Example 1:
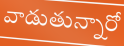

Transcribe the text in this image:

వాడుతున్నారో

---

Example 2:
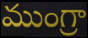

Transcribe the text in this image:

ముంగ్రా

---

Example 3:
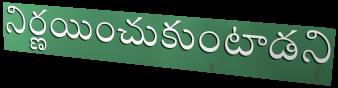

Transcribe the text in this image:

నిర్ణయించుకుంటాడని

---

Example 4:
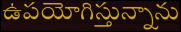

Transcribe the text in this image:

ఉపయోగిస్తున్నాను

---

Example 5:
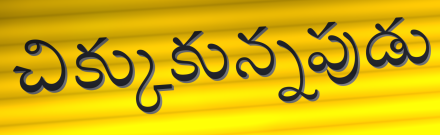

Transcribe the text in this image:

చిక్కుకున్నపుడు